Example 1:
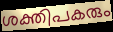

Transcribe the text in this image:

ശക്തിപകരും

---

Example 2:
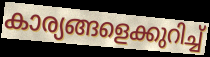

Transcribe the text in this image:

കാര്യങ്ങളെക്കുറിച്ച്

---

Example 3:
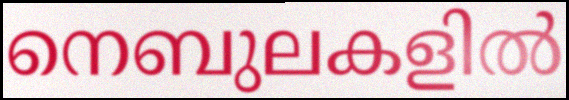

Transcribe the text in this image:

നെബുലകളിൽ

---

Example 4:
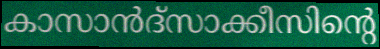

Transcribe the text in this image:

കാസാൻദ്സാക്കീസിന്റെ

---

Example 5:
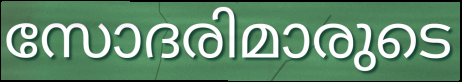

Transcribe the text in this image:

സോദരിമാരുടെ